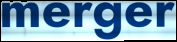
merger